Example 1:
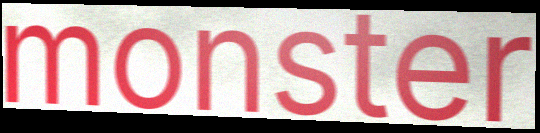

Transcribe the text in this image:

monster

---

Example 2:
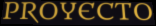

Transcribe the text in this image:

PROYECTO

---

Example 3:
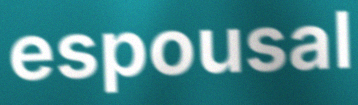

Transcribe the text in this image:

espousal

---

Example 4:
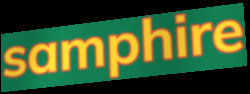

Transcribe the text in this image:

samphire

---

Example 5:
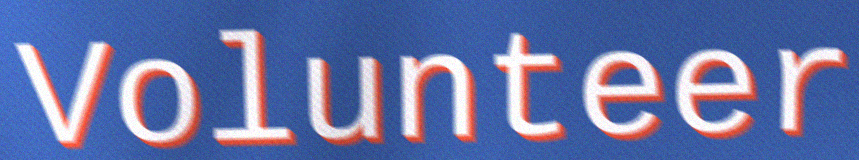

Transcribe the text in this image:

Volunteer